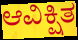
ಆವಿಕ್ಷಿತ